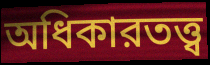
অধিকারতত্ত্ব